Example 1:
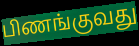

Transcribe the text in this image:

பிணங்குவது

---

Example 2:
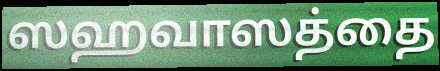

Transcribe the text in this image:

ஸஹவாஸத்தை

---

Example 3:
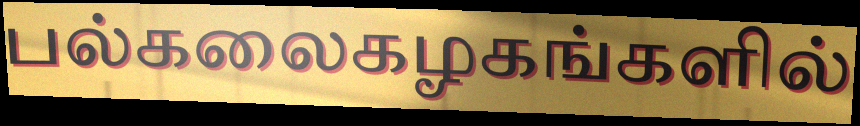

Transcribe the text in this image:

பல்கலைகழகங்களில்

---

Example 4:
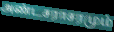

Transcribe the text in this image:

அண்டசராசரமும்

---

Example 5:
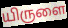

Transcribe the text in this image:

யிருளை